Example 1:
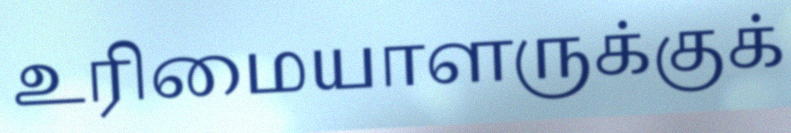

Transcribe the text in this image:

உரிமையாளருக்குக்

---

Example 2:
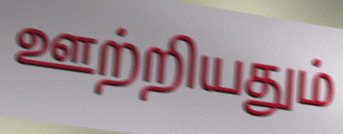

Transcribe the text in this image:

ஊற்றியதும்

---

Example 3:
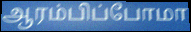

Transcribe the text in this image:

ஆரம்பிப்போமா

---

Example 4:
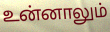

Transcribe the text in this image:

உன்னாலும்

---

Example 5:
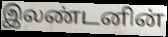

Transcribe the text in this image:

இலண்டனின்